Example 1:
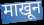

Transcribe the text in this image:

माखून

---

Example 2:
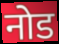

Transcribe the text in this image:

नोड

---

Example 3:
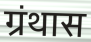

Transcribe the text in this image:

ग्रंथास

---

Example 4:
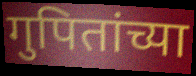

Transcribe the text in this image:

गुपितांच्या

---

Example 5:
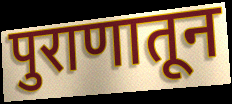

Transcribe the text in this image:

पुराणातून